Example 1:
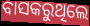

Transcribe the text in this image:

ବାସକରୁଥିଲେ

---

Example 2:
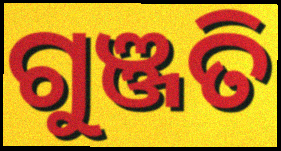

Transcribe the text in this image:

ଗୁଞ୍ଜତି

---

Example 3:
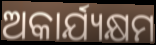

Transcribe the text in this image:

ଅକାର୍ଯ୍ୟକ୍ଷମ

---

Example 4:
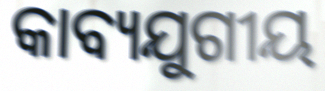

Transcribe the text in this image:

କାବ୍ୟଯୁଗୀୟ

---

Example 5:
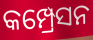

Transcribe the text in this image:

କମ୍ପ୍ରେସନ